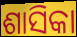
ଶାସିକା